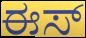
ಈಸ್